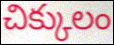
చిక్కులం